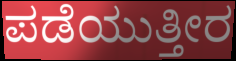
ಪಡೆಯುತ್ತೀರ